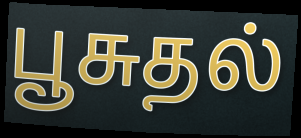
பூசுதல்